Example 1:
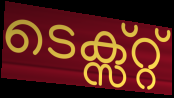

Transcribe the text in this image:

ടെക്സ്റ്റ്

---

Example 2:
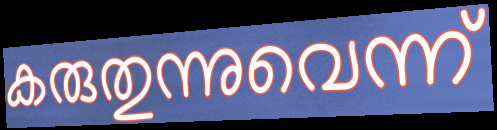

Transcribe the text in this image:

കരുതുന്നുവെന്ന്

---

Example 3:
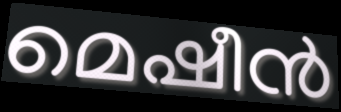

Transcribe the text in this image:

മെഷീൻ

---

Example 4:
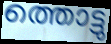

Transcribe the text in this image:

ത്തൊട്ടു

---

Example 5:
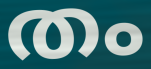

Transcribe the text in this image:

തം